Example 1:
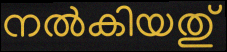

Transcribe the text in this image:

നൽകിയതു്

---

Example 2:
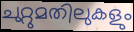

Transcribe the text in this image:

ചുറ്റുമതിലുകളും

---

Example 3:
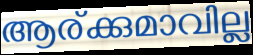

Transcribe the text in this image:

ആര്ക്കുമാവില്ല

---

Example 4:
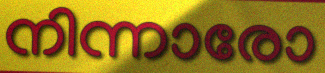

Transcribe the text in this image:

നിന്നാരോ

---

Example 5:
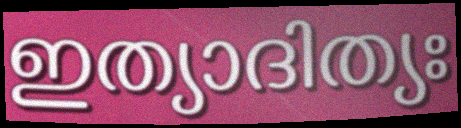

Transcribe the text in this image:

ഇത്യാദിത്യഃ